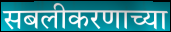
सबलीकरणाच्या